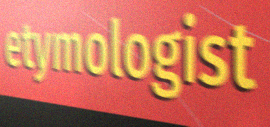
etymologist